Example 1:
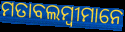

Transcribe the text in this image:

ମତାବଲମ୍ବୀମାନେ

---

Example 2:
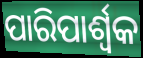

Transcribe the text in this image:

ପାରିପାର୍ଶ୍ବକ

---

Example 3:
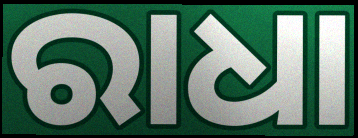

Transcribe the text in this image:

ରାଧା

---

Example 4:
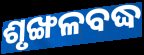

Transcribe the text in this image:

ଶୃଙ୍ଖଳବଦ୍ଧ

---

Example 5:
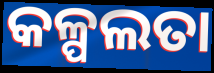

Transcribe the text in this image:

କଳ୍ପଲତା